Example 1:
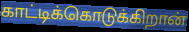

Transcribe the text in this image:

காட்டிக்கொடுக்கிறான்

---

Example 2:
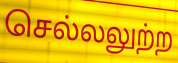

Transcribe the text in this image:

செல்லலுற்ற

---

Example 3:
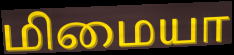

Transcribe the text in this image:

மிமையா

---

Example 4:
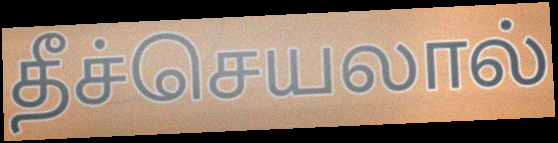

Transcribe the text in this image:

தீச்செயலால்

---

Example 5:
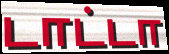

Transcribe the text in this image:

டாட்டா